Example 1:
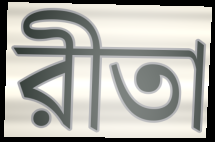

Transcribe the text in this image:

রীতা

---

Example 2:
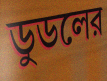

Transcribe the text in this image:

ডুডলের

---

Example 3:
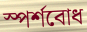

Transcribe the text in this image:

স্পর্শবোধ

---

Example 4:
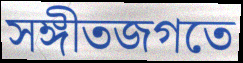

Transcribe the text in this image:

সঙ্গীতজগতে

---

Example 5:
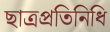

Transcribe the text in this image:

ছাত্রপ্রতিনিধি